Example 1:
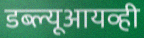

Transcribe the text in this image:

डब्ल्यूआयव्ही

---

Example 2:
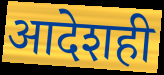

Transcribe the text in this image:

आदेशही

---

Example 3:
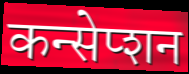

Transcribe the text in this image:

कन्सेप्शन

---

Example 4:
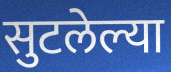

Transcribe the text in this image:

सुटलेल्या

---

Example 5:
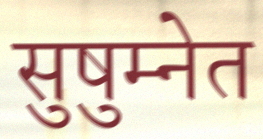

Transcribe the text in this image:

सुषुम्नेत